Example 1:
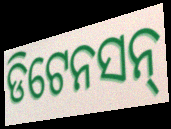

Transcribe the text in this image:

ଡିଟେନସନ୍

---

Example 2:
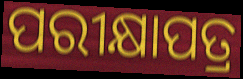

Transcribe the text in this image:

ପରୀକ୍ଷାପତ୍ର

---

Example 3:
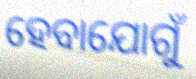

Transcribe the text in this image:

ହେବାଯୋଗୁଁ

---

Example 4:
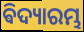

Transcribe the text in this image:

ଵିଦ୍ୟାରମ୍ଭ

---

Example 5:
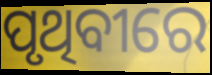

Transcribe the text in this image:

ପୃଥିବୀରେ